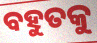
ବହୁତକୁ